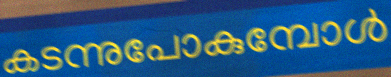
കടന്നുപോകുമ്പോൾ